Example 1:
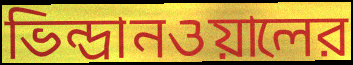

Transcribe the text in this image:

ভিন্দ্রানওয়ালের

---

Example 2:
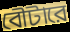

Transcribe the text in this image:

বৌটারে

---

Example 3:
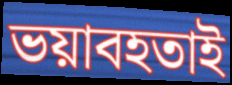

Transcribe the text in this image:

ভয়াবহতাই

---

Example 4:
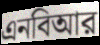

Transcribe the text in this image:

এনবিআর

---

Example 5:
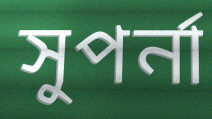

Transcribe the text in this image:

সুপর্না